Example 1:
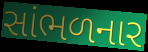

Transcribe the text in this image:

સાંભળનાર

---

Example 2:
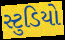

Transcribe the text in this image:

સ્ટુડિયો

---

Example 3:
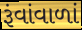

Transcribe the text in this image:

રૂંવાંવાળાં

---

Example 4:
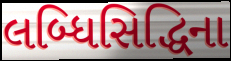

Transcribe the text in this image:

લબ્ધિસિદ્ધિના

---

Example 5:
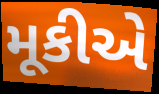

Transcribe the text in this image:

મૂકીએ